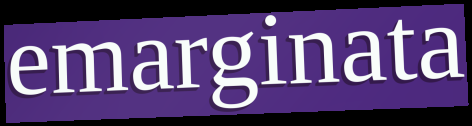
emarginata